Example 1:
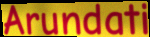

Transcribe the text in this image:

Arundati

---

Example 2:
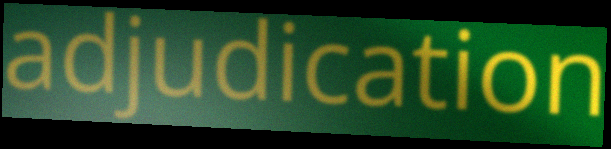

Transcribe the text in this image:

adjudication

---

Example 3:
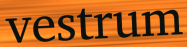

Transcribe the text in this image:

vestrum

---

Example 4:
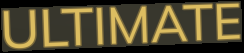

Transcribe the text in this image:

ULTIMATE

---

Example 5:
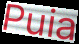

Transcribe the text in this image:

Puia